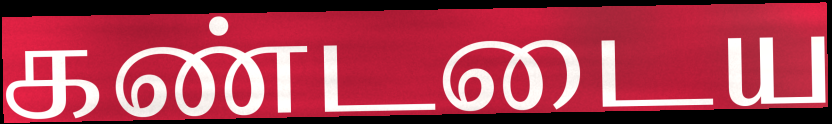
கண்டடைய